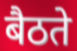
बैठते